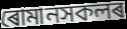
ৰোমানসকলৰ